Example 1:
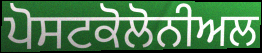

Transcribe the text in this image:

ਪੋਸਟਕੋਲੋਨੀਅਲ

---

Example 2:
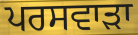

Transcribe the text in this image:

ਪਰਸਵਾੜਾ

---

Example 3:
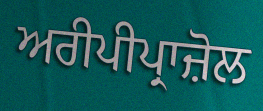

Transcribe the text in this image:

ਅਰੀਪੀਪ੍ਰਾਜ਼ੋਲ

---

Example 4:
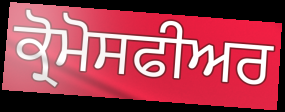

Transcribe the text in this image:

ਕ੍ਰੋਮੋਸਫੀਅਰ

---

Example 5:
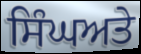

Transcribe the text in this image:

ਸਿੰਘਅਤੇ